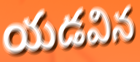
యడవిన